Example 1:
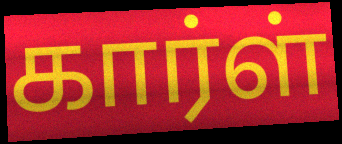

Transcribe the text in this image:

கார்ள்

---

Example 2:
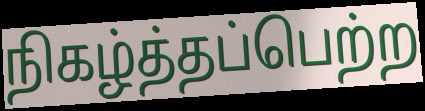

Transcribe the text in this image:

நிகழ்த்தப்பெற்ற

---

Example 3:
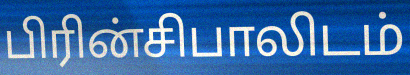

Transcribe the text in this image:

பிரின்சிபாலிடம்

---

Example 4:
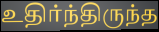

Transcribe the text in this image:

உதிர்ந்திருந்த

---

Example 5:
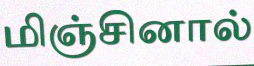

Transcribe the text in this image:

மிஞ்சினால்